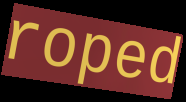
roped